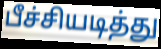
பீச்சியடித்து